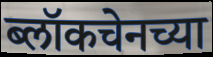
ब्लॉकचेनच्या